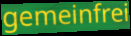
gemeinfrei